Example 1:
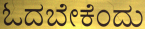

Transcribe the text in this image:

ಓದಬೇಕೆಂದು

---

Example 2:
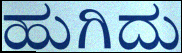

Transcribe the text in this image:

ಹುಗಿದು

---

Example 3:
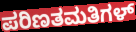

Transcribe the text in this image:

ಪರಿಣತಮತಿಗಳ್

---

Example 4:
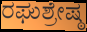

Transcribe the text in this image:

ರಘುಶ್ರೇಷ್ಠ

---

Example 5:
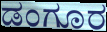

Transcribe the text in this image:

ಡಂಗೂರ